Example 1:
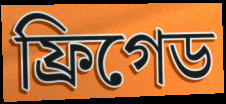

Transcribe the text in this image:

ফ্রিগেড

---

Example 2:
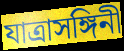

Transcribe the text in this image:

যাত্রাসঙ্গিনী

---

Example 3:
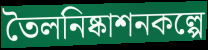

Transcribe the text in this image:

তৈলনিষ্কাশনকল্পে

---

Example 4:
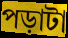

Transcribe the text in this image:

পড়াটা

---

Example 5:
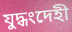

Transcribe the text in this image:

যুদ্ধংদেহী